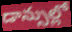
డాన్సుల్లో